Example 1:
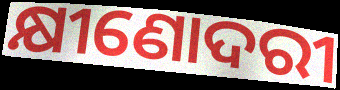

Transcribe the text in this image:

କ୍ଷୀଣୋଦରୀ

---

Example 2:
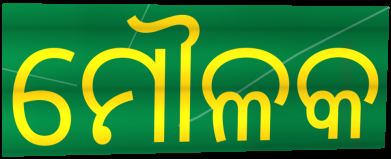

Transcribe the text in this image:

ମୌଳକ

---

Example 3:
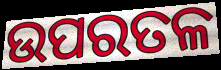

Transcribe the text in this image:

ଉପରତଳ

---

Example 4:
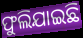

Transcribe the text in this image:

ଫୁଲିଯାଇଛି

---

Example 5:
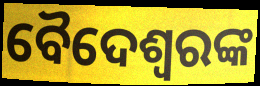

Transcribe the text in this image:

ବୈଦେଶ୍ୱରଙ୍କ